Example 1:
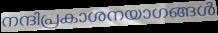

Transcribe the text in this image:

നന്ദിപ്രകാശനയാഗങ്ങൾ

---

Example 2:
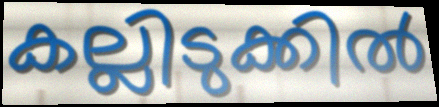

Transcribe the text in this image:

കല്ലിടുക്കിൽ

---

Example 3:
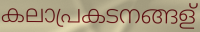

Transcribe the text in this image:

കലാപ്രകടനങ്ങള്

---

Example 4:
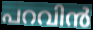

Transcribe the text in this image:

പറവിൻ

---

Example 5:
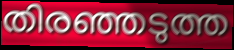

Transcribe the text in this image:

തിരഞ്ഞടുത്ത